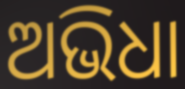
ଅଭିଧା